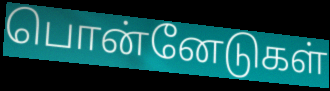
பொன்னேடுகள்